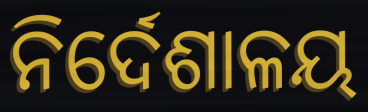
ନିର୍ଦେଶାଳୟ